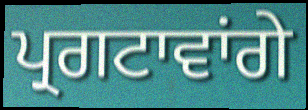
ਪ੍ਰਗਟਾਵਾਂਗੇ